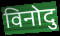
विनोदु